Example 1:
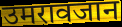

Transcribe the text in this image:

उमरावजान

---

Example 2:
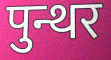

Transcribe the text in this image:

पुन्थर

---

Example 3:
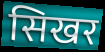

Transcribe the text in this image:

सिखर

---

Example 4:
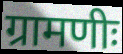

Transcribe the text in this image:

ग्रामणीः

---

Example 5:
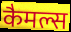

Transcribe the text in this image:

कैमल्स